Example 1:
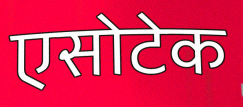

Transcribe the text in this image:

एसोटेक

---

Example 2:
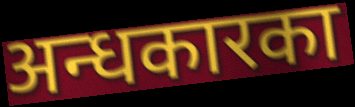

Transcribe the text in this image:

अन्धकारका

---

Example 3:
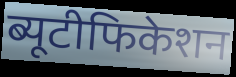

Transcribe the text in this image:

ब्यूटीफिकेशन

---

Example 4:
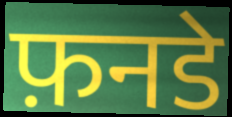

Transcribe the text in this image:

फ़नडे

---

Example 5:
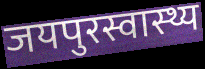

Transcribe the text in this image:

जयपुरस्वास्थ्य